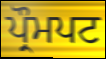
ਪ੍ਰੌਮਪਟ